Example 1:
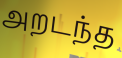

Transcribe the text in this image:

அறடந்த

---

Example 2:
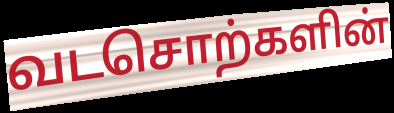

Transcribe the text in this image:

வடசொற்களின்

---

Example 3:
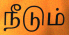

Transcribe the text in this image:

நீடும்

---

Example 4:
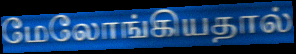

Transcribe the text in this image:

மேலோங்கியதால்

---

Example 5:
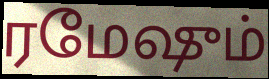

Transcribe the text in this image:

ரமேஷும்